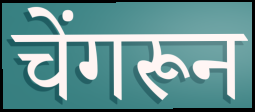
चेंगरून